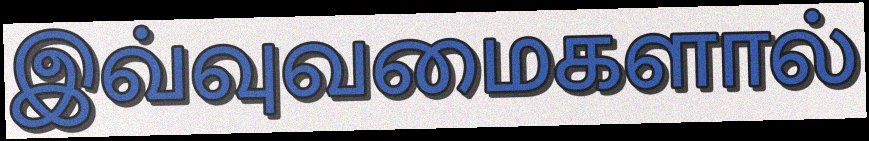
இவ்வுவமைகளால்